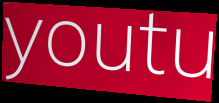
youtu